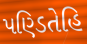
પણ્ડિતેહિ